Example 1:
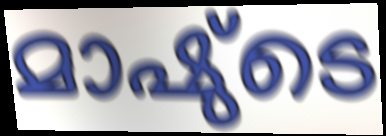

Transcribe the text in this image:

മാഷു്ടെ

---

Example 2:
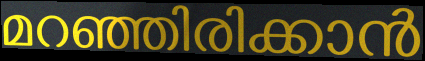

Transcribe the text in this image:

മറഞ്ഞിരിക്കാൻ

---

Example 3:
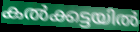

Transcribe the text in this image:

കൽക്കട്ടയിൽ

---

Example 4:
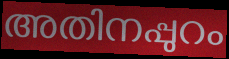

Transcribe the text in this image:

അതിനപ്പുറം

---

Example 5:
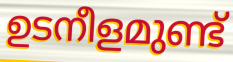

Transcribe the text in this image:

ഉടനീളമുണ്ട്